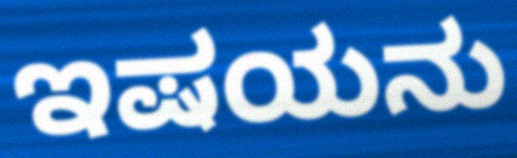
ಇಷಯನು